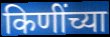
किणींच्या